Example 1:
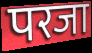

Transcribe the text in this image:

परजा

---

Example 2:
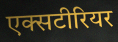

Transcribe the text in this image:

एक्‍सटीरियर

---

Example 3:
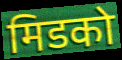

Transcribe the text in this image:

मिडको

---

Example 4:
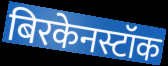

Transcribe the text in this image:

बिरकेनस्टॉक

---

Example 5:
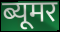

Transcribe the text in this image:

ब्यूमर